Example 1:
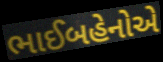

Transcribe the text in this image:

ભાઈબહેનોએ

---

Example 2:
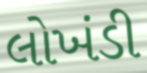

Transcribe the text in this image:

લોખંડી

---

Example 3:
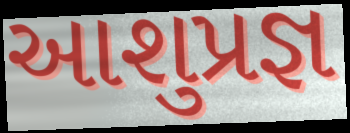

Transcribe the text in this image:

આશુપ્રજ્ઞ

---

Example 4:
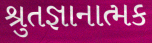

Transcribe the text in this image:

શ્રુતજ્ઞાનાત્મક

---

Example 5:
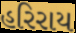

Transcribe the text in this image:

હરિરાય